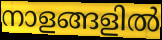
നാളങ്ങളിൽ